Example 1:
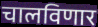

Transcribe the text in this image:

चालविणार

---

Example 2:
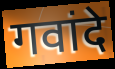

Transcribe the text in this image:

गवांदे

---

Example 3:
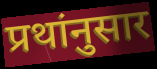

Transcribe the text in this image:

प्रथांनुसार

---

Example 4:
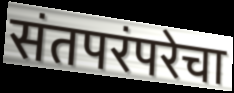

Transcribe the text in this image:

संतपरंपरेचा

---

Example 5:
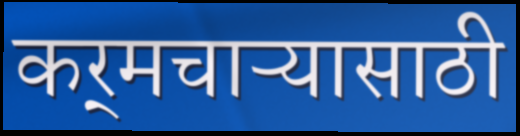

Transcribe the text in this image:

कर्मचाऱ्यासाठी